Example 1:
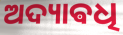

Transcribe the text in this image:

ଅଦ୍ୟାଵଧି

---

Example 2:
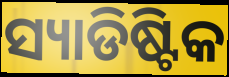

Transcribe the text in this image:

ସ୍ୟାଡିଷ୍ଟିକ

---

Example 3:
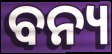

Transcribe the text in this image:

ବନ୍ୟ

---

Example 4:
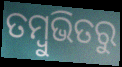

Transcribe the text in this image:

ତମ୍ବୁଭିତରୁ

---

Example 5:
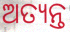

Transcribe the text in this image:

ଅତ୍ୟନ୍ତ